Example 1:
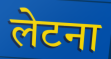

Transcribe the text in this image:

लेटना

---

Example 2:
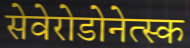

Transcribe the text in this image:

सेवेरोडोनेत्स्क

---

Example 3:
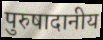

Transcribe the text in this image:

पुरुषादानीय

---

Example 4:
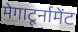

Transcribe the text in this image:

मेगाटूर्नामेंट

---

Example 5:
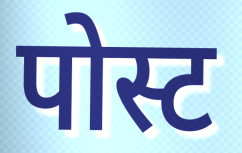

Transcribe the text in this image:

पोस्ट